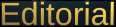
Editorial